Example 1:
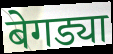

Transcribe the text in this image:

बेगड्या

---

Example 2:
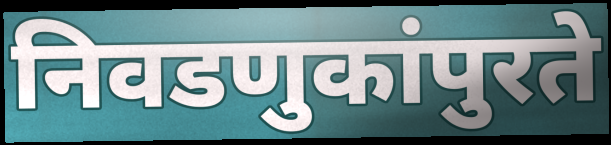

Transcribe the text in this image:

निवडणुकांपुरते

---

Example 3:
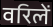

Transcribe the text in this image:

वरिलें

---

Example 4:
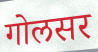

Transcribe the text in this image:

गोलसर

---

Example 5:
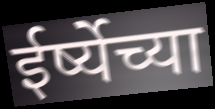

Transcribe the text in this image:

ईर्ष्येच्या